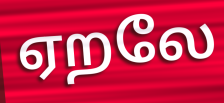
ஏறலே